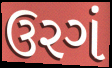
ઉરગં